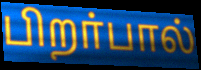
பிறர்பால்